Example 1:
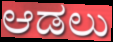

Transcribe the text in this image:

ಆಡಲು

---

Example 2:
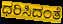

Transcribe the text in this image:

ಧರಿಸಿದಂತೆ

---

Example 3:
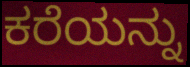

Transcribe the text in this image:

ಕರೆಯನ್ನು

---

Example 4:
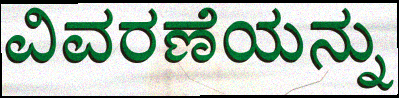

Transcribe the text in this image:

ವಿವರಣೆಯನ್ನು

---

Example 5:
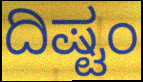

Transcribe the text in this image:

ದಿಷ್ಟಂ